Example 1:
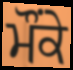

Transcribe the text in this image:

ਮੌੰਕੇ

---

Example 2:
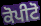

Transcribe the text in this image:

ਕੋਪੀਟੋ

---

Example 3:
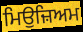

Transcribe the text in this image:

ਮਿਉਜ਼ਿਅਮ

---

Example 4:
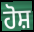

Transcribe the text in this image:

ਹੋਸ਼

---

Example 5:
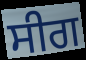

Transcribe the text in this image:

ਸੀਗ